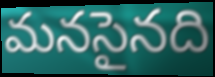
మనసైనది